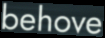
behove